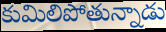
కుమిలిపోతున్నాడు